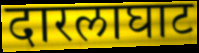
दारलाघाट